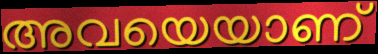
അവയെയാണ്